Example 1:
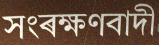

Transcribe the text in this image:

সংৰক্ষণবাদী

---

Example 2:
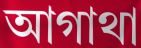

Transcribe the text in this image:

আগাথা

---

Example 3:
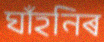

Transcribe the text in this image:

ঘাঁহনিৰ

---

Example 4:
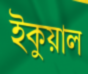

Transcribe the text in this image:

ইকুয়াল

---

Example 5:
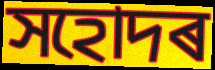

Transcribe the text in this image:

সহোদৰ